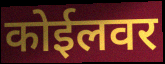
कोईलवर